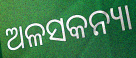
ଅଳସକନ୍ୟା